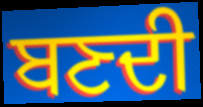
ਬਣਦੀ